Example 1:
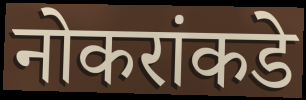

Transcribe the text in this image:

नोकरांकडे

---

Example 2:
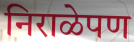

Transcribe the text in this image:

निराळेपण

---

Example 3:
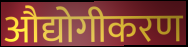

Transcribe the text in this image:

औद्योगीकरण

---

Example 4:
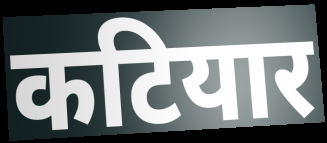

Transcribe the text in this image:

कटियार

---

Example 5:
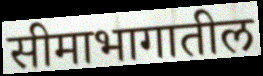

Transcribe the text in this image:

सीमाभागातील